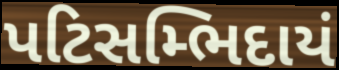
પટિસમ્ભિદાયં